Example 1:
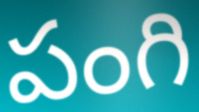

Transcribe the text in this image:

పంగి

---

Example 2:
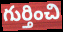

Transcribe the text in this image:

గుర్తించి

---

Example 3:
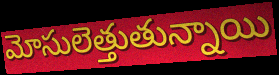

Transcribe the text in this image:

మోసులెత్తుతున్నాయి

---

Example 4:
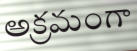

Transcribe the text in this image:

అక్రమంగా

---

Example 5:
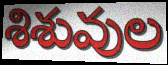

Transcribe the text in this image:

శిశువుల